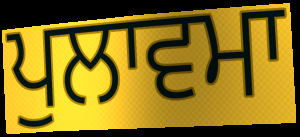
ਪੁਲਾਵਮਾ